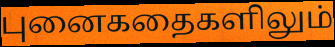
புனைகதைகளிலும்